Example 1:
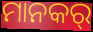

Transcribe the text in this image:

ମାନକର୍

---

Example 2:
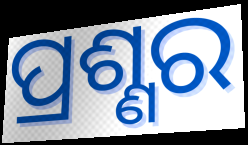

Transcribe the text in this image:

ପ୍ରଶ୍ଣର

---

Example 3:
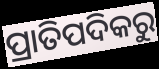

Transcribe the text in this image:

ପ୍ରାତିପଦିକରୁ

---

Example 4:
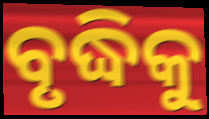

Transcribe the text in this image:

ବୃଦ୍ଧିକୁ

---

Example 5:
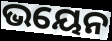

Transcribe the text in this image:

ଭୟେନ